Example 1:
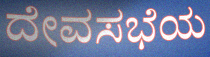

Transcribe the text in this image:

ದೇವಸಭೆಯ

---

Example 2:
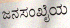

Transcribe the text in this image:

ಜನಸಂಖೈಯ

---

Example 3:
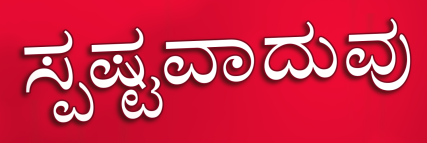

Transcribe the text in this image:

ಸ್ಪಷ್ಟವಾದುವು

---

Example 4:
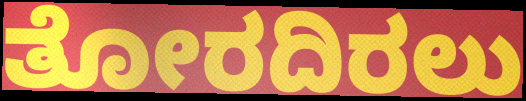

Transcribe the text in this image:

ತೋರದಿರಲು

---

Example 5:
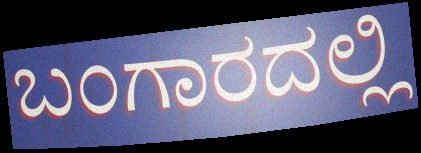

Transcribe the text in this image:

ಬಂಗಾರದಲ್ಲಿ